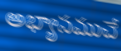
అభ్యాసముచే